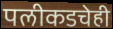
पलीकडचेही